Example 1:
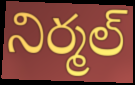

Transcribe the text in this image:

నిర్మల్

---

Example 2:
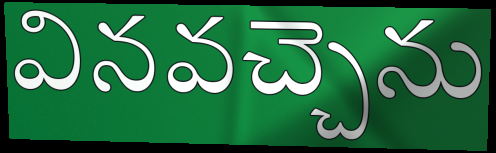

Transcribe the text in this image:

వినవచ్చెను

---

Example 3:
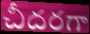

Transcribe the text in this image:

చీదరగా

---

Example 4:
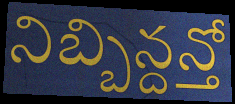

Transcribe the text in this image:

నిబ్బిన్దన్తో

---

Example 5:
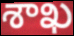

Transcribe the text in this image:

శాఖ